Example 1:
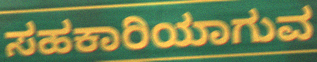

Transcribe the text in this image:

ಸಹಕಾರಿಯಾಗುವ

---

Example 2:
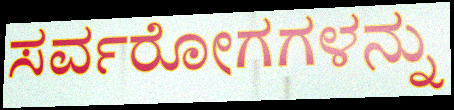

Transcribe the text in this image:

ಸರ್ವರೋಗಗಳನ್ನು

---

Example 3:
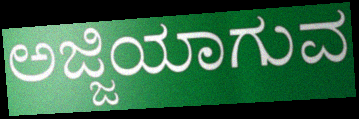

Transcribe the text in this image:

ಅಜ್ಜಿಯಾಗುವ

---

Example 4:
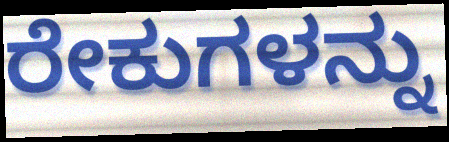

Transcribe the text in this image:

ರೇಕುಗಳನ್ನು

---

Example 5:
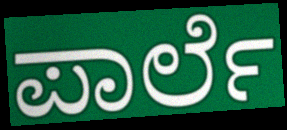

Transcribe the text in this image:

ಪಾರ್ಲೆ